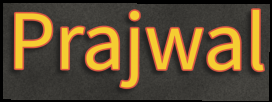
Prajwal